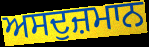
ਅਸਦੁਜ਼ਮਾਨ